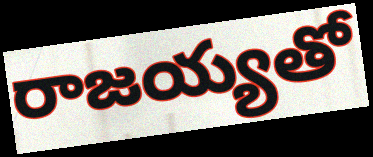
రాజయ్యతో